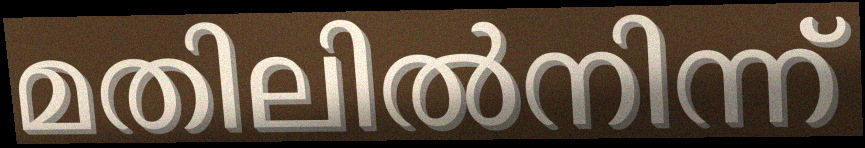
മതിലിൽനിന്ന്